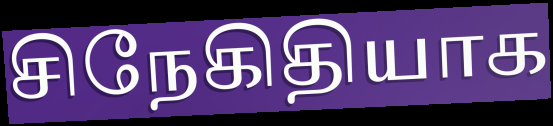
சிநேகிதியாக